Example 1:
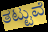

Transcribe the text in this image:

ತಟ್ಟುವೆ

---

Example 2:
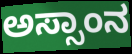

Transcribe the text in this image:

ಅಸ್ಸಾಂನ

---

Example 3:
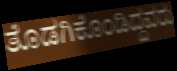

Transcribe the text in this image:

ತೊಡಗಿಕೊಂಡಿದ್ದವರು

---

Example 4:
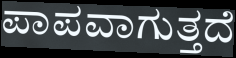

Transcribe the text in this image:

ಪಾಪವಾಗುತ್ತದೆ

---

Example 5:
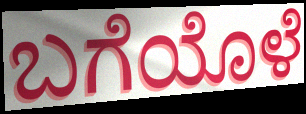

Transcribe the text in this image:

ಬಗೆಯೊಳೆ